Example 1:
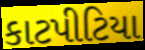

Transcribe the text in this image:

કાટપીટિયા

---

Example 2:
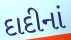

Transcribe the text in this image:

દાદીનાં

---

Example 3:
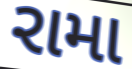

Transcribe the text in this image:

રામા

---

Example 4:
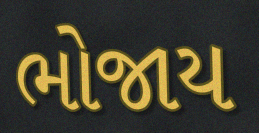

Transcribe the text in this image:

ભોજાય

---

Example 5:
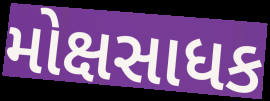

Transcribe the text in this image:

મોક્ષસાધક